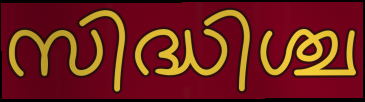
സിദ്ധിശ്ച